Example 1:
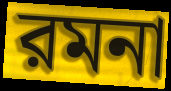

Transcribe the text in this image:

রমনা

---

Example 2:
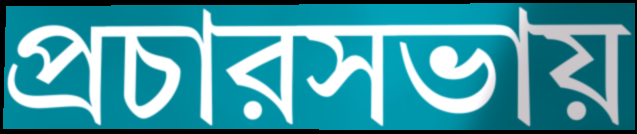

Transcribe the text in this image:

প্রচারসভায়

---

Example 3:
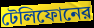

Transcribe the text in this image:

টেলিফোনের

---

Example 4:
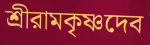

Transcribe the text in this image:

শ্রীরামকৃষ্ণদেব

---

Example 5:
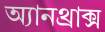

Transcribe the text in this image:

অ্যানথ্রাক্স